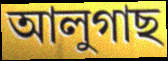
আলুগাছ